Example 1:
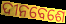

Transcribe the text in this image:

ଦୀନବେଶେ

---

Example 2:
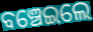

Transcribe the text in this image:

ବଞ୍ଚେଇଲେ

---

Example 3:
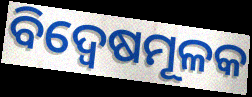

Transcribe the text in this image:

ବିଦ୍ୱେଷମୂଳକ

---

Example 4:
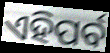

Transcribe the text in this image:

ଏହିପର୍ବ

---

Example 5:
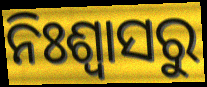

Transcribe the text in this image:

ନିଃଶ୍ବାସରୁ